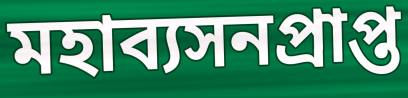
মহাব্যসনপ্রাপ্ত